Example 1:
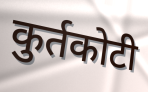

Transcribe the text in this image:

कुर्तकोटी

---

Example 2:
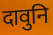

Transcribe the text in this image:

दावुनि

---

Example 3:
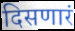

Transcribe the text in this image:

दिसणारं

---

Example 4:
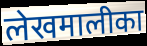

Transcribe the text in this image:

लेखमालीका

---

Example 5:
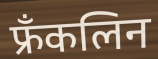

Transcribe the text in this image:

फ्रँकलिन